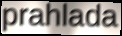
prahlada